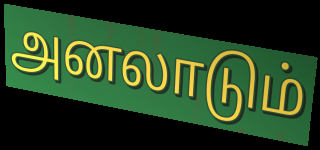
அனலாடும்